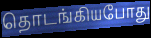
தொடங்கியபோது